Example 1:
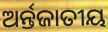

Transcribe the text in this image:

ଅର୍ନ୍ତଜାତୀୟ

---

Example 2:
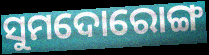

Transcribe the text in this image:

ସୁମଦୋରୋଙ୍ଗ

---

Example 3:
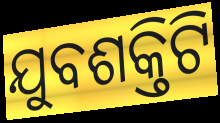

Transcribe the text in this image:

ଯୁବଶକ୍ତିଟି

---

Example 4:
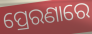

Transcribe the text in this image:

ପ୍ରେରଣାରେ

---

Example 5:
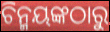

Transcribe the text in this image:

ଚିନ୍ମୟଙ୍କଠାରୁ